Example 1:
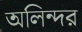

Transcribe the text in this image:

অলিন্দর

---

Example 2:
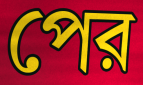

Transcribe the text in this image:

পের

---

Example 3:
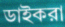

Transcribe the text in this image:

ডাইকরা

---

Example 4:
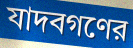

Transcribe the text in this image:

যাদবগণের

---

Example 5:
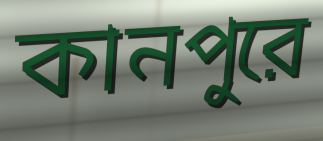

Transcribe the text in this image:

কানপুরে